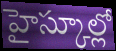
హైస్కూల్లో